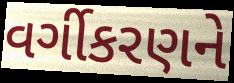
વર્ગીકરણને